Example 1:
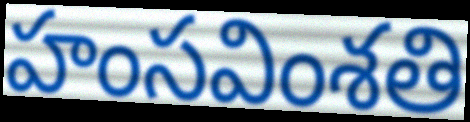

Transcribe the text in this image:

హంసవింశతి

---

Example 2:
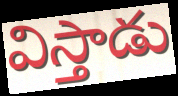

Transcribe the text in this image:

విస్తాడు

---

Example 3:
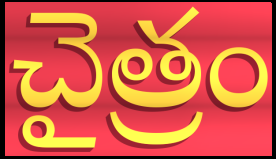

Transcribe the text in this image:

చైత్రం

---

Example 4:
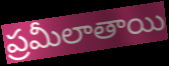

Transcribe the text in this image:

ప్రమీలాతాయి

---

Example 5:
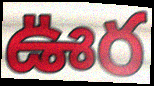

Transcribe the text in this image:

ఊర